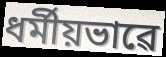
ধৰ্মীয়ভাৱে